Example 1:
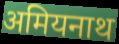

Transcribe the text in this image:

अमियनाथ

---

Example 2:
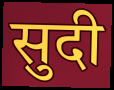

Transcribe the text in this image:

सुदी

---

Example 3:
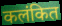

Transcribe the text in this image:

कलंकित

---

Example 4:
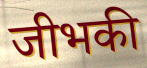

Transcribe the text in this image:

जीभकी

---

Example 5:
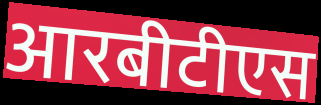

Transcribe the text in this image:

आरबीटीएस